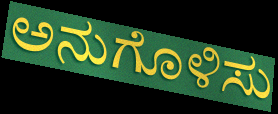
ಅನುಗೊಳಿಸು